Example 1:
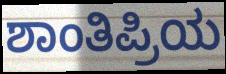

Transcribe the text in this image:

ಶಾಂತಿಪ್ರಿಯ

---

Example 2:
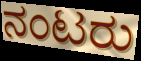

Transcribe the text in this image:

ನಂಟರು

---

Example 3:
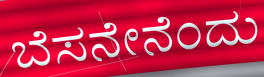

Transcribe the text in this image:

ಬೆಸನೇನೆಂದು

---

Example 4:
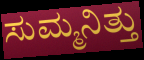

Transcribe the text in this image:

ಸುಮ್ಮನಿತ್ತು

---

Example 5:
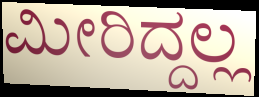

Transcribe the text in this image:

ಮೀರಿದ್ದಲ್ಲ